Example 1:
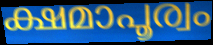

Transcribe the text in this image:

ക്ഷമാപൂര്വം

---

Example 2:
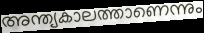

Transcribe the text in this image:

അന്ത്യകാലത്താണെന്നും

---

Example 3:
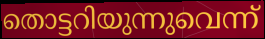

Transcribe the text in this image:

തൊട്ടറിയുന്നുവെന്ന്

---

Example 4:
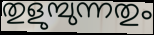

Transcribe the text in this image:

തുളുമ്പുന്നതും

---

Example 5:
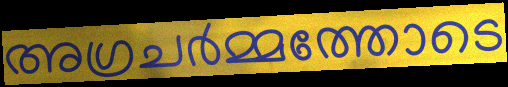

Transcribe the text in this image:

അഗ്രചർമ്മത്തോടെ